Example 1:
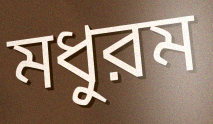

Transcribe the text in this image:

মধুরম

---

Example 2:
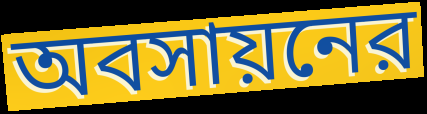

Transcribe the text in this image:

অবসায়নের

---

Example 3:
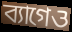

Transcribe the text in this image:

ব্যাগেও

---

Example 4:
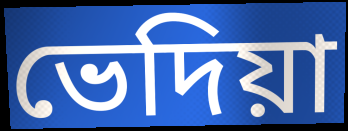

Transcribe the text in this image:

ভেদিয়া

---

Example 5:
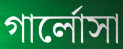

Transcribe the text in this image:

গার্লোসা